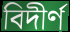
বিদীর্ণ